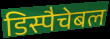
डिस्पैचेबल